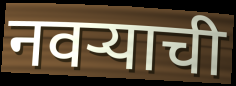
नवऱ्याची